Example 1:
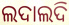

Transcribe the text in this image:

ଲଦାଲଦି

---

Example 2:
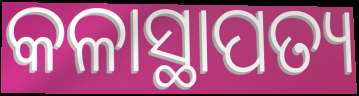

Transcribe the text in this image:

କଳାସ୍ଥାପତ୍ୟ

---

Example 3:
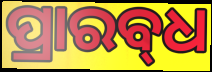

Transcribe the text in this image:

ପ୍ରାରବ୍‍ଧ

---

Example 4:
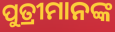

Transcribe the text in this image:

ପୁତ୍ରୀମାନଙ୍କ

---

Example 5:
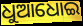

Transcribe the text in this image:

ଧୁଆଧୋଇ